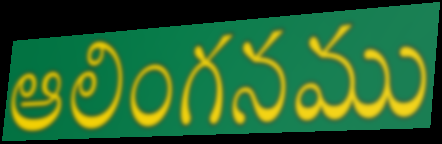
ఆలింగనము